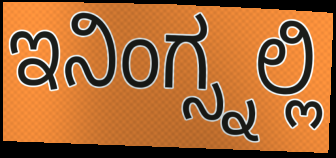
ಇನಿಂಗ್ಸ್ನಲ್ಲಿ